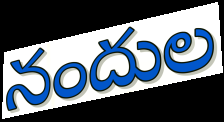
నందుల